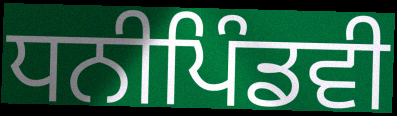
ਧਨੀਪਿੰਡਵੀ